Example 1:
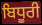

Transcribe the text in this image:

ਬਿਧੂਰੀ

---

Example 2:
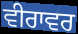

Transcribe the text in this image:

ਵੀਰਾਵਰ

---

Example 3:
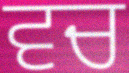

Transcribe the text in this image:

ਵਚ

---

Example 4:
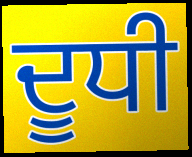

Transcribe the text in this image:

ਦੂਧੀ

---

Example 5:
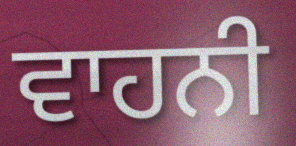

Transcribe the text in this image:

ਵਾਹਨੀ